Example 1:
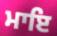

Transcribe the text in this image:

ਮਾਇ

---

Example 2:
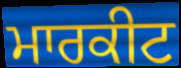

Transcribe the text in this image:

ਮਾਰਕੀਟ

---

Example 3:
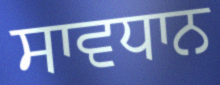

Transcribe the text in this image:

ਸਾਵਧਾਨ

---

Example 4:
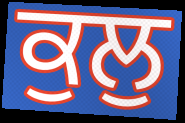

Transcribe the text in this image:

ਕੁਲੁ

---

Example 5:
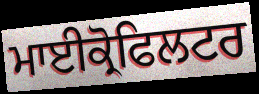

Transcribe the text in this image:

ਮਾਈਕ੍ਰੋਫਿਲਟਰ